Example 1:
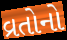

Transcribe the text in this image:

વ્રતોનો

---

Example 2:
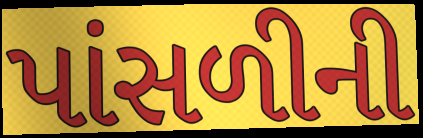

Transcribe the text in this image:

પાંસળીની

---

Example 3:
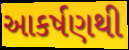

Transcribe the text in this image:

આકર્ષણથી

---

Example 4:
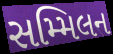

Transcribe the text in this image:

સમ્મિલન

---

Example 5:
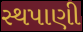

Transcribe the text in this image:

સ્થપાણી